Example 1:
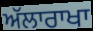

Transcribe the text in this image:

ਅੱਲਾਰਾਖਾ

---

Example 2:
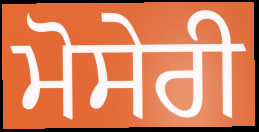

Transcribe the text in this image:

ਮੋਸੇਰੀ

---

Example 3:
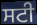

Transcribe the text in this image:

ਸਟੀ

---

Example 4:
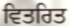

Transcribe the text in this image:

ਵਿਤਰਿਤ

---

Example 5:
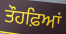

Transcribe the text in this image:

ਤੌਹਫ਼ਿਆਂ